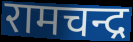
रामचन्द्र